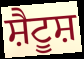
ਸ਼ੈਟੂਸ਼